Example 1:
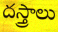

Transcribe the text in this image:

దస్త్రాలు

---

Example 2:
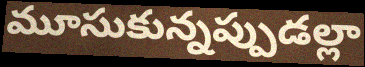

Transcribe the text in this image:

మూసుకున్నప్పుడల్లా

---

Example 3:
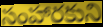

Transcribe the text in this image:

సంహారకుని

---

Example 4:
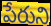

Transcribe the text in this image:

పేరుని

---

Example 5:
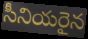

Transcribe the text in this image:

సీనియరైన